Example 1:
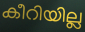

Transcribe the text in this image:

കീറിയില്ല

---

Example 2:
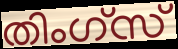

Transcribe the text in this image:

തിംഗ്സ്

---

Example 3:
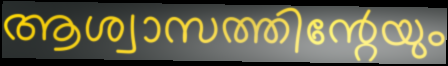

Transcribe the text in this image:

ആശ്വാസത്തിന്റേയും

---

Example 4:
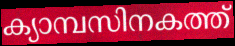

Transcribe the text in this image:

ക്യാമ്പസിനകത്ത്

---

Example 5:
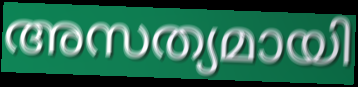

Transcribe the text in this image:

അസത്യമായി